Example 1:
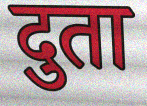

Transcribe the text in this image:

दुता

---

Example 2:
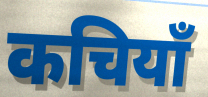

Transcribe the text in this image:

कचियाँ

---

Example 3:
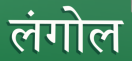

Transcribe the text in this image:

लंगोल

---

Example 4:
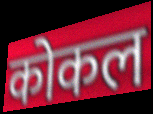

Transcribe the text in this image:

कोकल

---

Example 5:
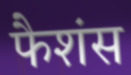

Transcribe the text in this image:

फैशंस